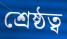
শ্ৰেষ্ঠত্ব